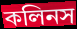
কলিনস